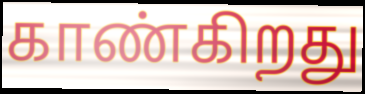
காண்கிறது